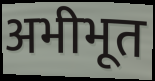
अभीभूत